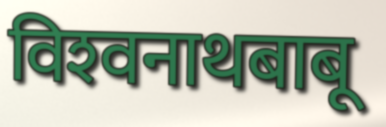
विश्‍वनाथबाबू